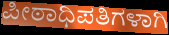
ಪೀಠಾಧಿಪತಿಗಳಾಗಿ